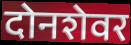
दोनशेवर